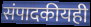
संपादकीयही